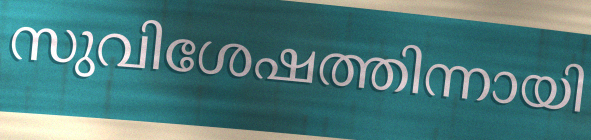
സുവിശേഷത്തിന്നായി